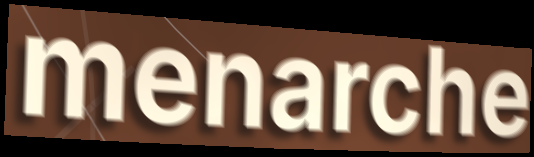
menarche